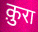
क़ुरा